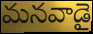
మనవాడై